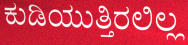
ಕುಡಿಯುತ್ತಿರಲಿಲ್ಲ